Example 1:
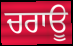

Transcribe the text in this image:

ਚਰਾਊ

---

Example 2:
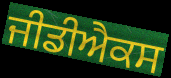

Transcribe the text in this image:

ਜੀਡੀਐਕਸ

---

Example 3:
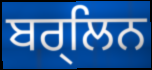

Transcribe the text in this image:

ਬਰ੍ਲਿਨ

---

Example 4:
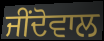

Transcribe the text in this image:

ਜੀਂਦੋਵਾਲ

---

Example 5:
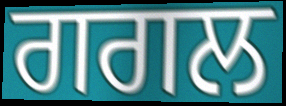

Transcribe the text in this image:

ਗਗਲ